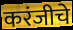
करंजीचे